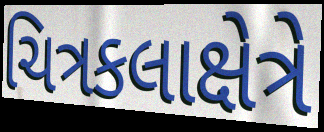
ચિત્રકલાક્ષેત્રે